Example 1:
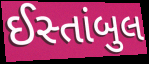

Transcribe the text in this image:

ઈસ્તાંબુલ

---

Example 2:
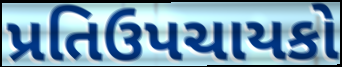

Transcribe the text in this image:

પ્રતિઉપચાયકો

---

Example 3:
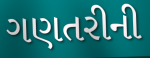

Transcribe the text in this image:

ગણતરીની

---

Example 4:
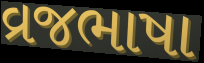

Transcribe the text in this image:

વ્રજભાષા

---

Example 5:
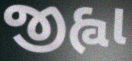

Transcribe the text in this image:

જીહ્વા